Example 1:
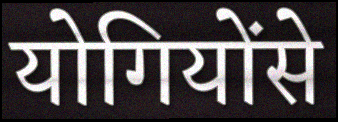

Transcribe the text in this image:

योगियोंसे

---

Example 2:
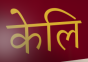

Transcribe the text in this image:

केलि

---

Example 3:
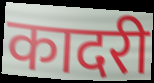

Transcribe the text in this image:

कादरी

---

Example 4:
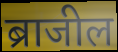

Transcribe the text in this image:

ब्राजील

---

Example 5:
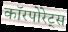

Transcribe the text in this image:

कॉरपोरेट्स